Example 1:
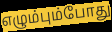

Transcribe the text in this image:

எழும்பும்போது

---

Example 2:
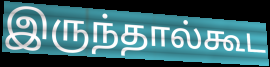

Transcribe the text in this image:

இருந்தால்கூட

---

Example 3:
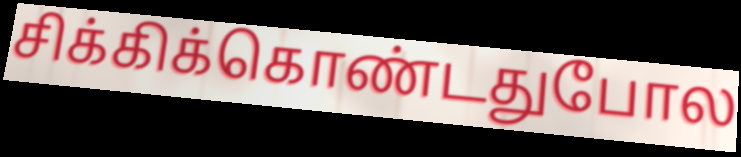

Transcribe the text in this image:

சிக்கிக்கொண்டதுபோல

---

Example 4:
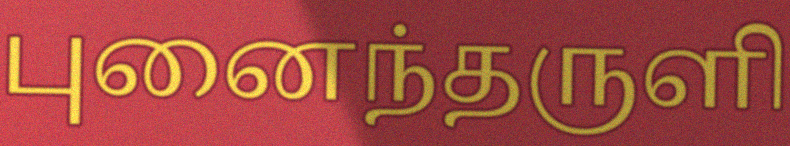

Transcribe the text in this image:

புனைந்தருளி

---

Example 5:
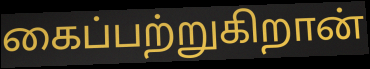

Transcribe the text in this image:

கைப்பற்றுகிறான்